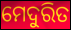
ମେଦୁରିତ